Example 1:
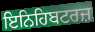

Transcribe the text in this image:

ਇਨਿਹਿਬਟਰਜ਼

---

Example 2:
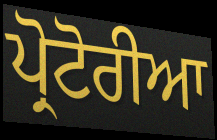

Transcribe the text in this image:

ਪ੍ਰੋਟੋਰੀਆ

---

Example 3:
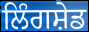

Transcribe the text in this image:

ਲਿੰਗਸ਼ੇਡ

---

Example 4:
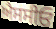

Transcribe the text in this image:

ਐਸਸੀਓ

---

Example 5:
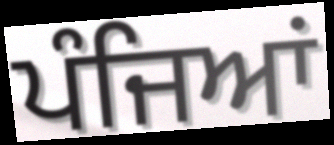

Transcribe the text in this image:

ਪੰਜਿਆਂ